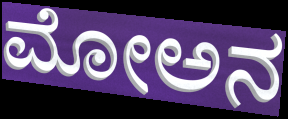
ಮೋಅನ